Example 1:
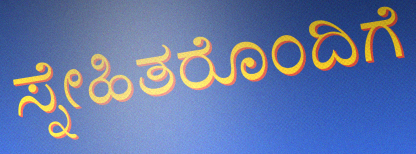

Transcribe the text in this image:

ಸ್ನೇಹಿತರೊಂದಿಗೆ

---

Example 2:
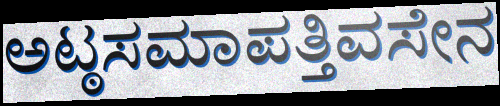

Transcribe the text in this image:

ಅಟ್ಠಸಮಾಪತ್ತಿವಸೇನ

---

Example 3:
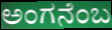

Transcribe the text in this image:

ಅಂಗನೆಂಬ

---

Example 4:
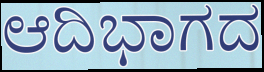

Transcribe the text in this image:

ಆದಿಭಾಗದ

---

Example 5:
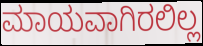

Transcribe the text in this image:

ಮಾಯವಾಗಿರಲಿಲ್ಲ